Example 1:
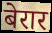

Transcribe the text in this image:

बेरार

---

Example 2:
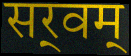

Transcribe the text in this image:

सर्वम्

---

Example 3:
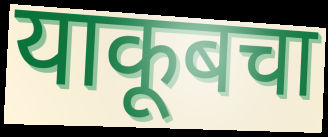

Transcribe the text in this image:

याकूबचा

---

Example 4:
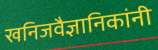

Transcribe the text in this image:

खनिजवैज्ञानिकांनी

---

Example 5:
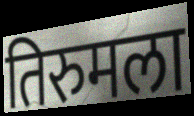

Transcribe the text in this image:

तिरुमला